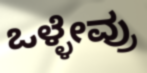
ಒಳ್ಳೇವ್ರು